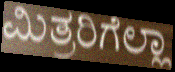
ಮಿತ್ರರಿಗೆಲ್ಲಾ